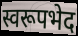
स्वरूपभेद